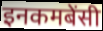
इनकमबेंसी